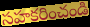
సహకరించండి